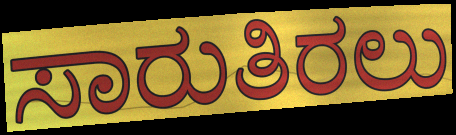
ಸಾರುತಿರಲು